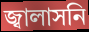
জ্বালাসনি